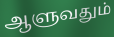
ஆளுவதும்